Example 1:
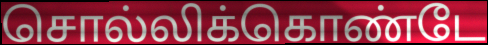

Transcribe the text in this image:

சொல்லிக்கொண்டே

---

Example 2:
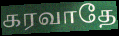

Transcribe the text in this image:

கரவாதே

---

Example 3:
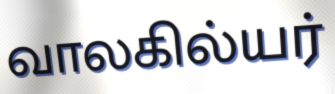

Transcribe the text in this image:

வாலகில்யர்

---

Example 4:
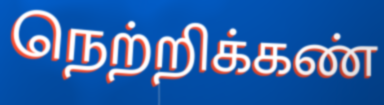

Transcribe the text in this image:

நெற்றிக்கண்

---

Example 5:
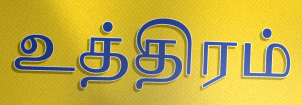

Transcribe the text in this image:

உத்திரம்